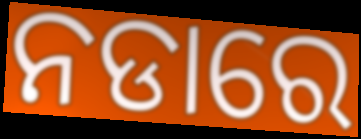
ନଡାରେ